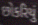
છોકરિયું